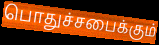
பொதுச்சபைக்கும்